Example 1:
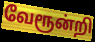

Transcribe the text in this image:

வேரூன்றி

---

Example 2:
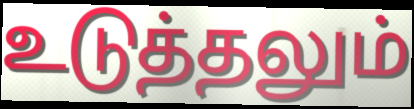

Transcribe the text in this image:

உடுத்தலும்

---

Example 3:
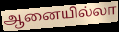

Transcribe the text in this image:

ஆனையில்லா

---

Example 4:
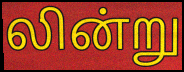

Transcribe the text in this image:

லின்று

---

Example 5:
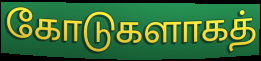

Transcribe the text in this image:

கோடுகளாகத்